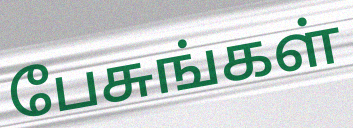
பேசுங்கள்